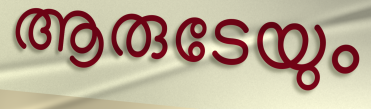
ആരുടേയും